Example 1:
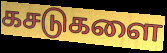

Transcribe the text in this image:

கசடுகளை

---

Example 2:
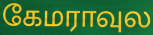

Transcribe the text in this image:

கேமராவுல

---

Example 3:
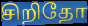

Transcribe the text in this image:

சிறிதோ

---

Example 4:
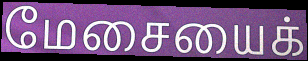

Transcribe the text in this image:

மேசையைக்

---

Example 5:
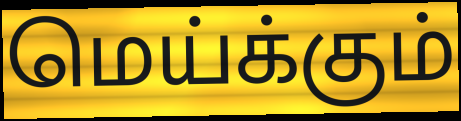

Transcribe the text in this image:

மெய்க்கும்